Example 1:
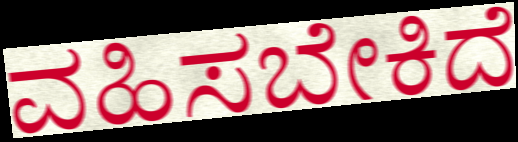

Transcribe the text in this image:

ವಹಿಸಬೇಕಿದೆ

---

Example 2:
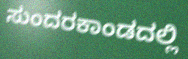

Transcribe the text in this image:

ಸುಂದರಕಾಂಡದಲ್ಲಿ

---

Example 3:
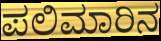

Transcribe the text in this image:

ಪಲಿಮಾರಿನ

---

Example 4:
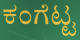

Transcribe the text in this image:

ಕಂಗೆಟ್ಟ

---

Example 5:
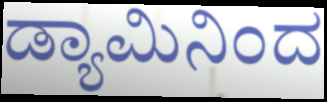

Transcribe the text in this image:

ಡ್ಯಾಮಿನಿಂದ